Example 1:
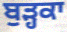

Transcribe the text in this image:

ਬੁੜ੍ਹਕਾ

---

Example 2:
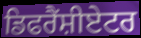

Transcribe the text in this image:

ਡਿਫਰੈਂਸ਼ੀਏਟਰ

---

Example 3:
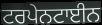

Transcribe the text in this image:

ਟਰਪੇਨਟਾਈਨ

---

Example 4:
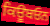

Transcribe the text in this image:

ਕਿਊਬਓਨ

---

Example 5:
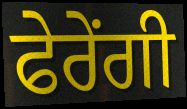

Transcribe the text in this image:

ਫੇਰੇਂਗੀ